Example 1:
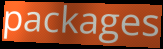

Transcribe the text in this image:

packages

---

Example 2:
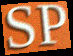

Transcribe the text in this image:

SP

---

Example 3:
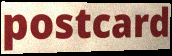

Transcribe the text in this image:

postcard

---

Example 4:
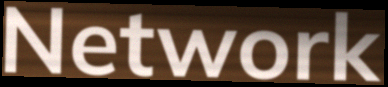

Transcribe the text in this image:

Network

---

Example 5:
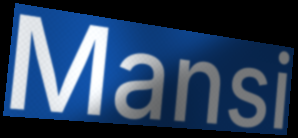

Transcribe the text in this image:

Mansi